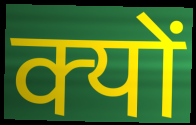
क्‍यों